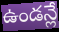
ఉండన్లే